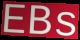
EBs